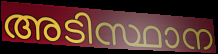
അടിസ്ഥാന